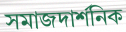
সমাজদার্শনিক